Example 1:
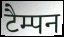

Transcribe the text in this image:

टैम्पन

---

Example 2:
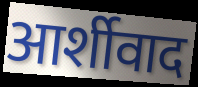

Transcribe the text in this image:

आर्शीवाद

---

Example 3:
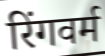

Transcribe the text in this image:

रिंगवर्म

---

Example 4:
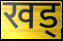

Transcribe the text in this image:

खड्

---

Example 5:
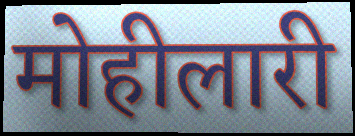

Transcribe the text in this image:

मोहीलारी